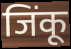
जिंकू